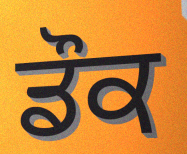
ਡੌਕ